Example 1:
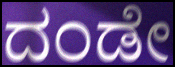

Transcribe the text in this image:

ದಂಡೇ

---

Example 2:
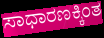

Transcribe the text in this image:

ಸಾಧಾರಣಕ್ಕಿಂತ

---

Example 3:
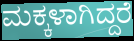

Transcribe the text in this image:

ಮಕ್ಕಳಾಗಿದ್ದರೆ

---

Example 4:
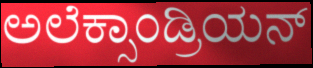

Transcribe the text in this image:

ಅಲೆಕ್ಸಾಂಡ್ರಿಯನ್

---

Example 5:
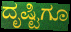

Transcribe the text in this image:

ದೃಷ್ಟಿಗೂ